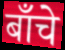
बाँचे